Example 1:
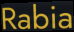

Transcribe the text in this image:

Rabia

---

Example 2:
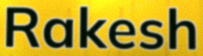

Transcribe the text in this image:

Rakesh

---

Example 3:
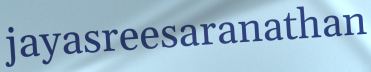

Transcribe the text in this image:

jayasreesaranathan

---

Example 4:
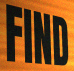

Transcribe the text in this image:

FIND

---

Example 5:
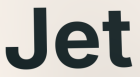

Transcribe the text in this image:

Jet